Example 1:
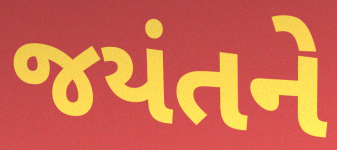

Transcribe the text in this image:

જયંતને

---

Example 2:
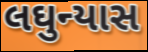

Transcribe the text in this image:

લઘુન્યાસ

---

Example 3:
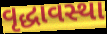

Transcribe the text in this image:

વૃદ્ધાવસ્થા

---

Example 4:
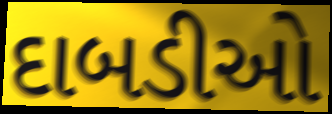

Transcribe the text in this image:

દાબડીઓ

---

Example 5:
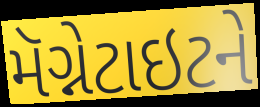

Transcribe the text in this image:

મૅગ્નેટાઇટને